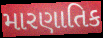
મારણાતિક